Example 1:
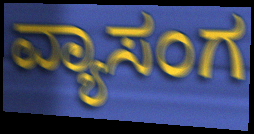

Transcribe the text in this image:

ವ್ಯಾಸಂಗ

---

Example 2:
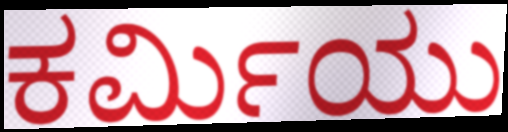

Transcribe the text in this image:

ಕರ್ಮಿಯು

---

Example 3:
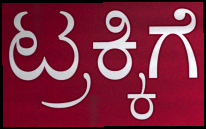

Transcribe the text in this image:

ಟ್ರಕ್ಕಿಗೆ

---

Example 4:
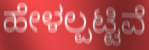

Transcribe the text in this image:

ಹೇಳಲ್ಪಟ್ಟಿವೆ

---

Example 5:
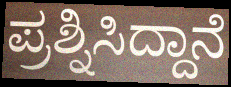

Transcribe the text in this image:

ಪ್ರಶ್ನಿಸಿದ್ದಾನೆ